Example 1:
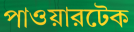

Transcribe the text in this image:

পাওয়ারটেক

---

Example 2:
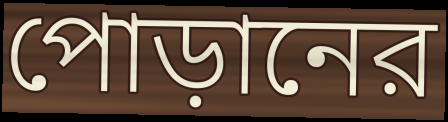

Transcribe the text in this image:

পোড়ানের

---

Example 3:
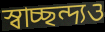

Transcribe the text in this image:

স্বাচ্ছন্দ্যও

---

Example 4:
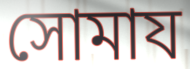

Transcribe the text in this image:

সোমায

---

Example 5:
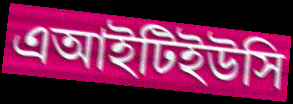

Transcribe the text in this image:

এআইটিইউসি